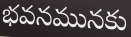
భవనమునకు